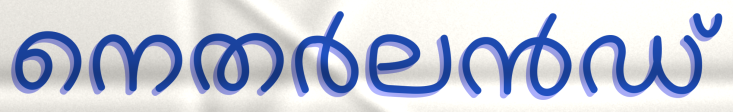
നെതർലൻഡ്